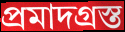
প্রমাদগ্রস্ত